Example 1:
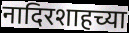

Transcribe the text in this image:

नादिरशाहच्या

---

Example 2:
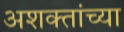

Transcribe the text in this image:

अशक्तांच्या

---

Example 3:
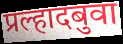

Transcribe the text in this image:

प्रल्हादबुवा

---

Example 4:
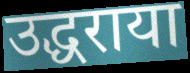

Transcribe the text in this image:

उद्धराया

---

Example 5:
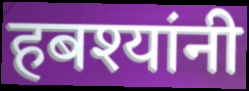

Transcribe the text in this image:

हबश्यांनी